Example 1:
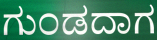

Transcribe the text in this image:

ಗುಂಡದಾಗ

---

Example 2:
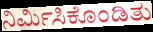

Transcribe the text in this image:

ನಿರ್ಮಿಸಿಕೊಂಡಿತು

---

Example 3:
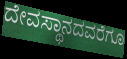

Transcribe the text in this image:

ದೇವಸ್ಥಾನದವರೆಗೂ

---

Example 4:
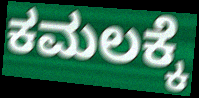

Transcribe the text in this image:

ಕಮಲಕ್ಕೆ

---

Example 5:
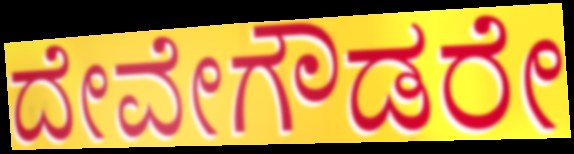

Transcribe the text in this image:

ದೇವೇಗೌಡರೇ